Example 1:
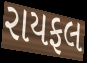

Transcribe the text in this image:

રાયફલ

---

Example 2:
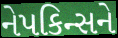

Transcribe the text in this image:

નેપકિન્સને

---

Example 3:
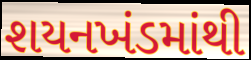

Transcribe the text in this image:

શયનખંડમાંથી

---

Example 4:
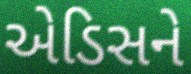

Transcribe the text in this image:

એડિસને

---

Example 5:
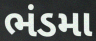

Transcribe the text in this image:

ભંડમા